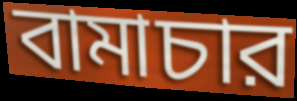
বামাচার